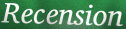
Recension